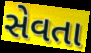
સેવતા